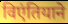
विएंतियाने